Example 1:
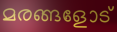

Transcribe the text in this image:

മരങ്ങളോട്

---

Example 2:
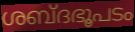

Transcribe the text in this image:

ശബ്ദഭൂപടം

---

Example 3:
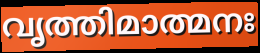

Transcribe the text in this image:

വൃത്തിമാത്മനഃ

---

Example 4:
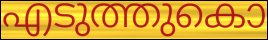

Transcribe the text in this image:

എടുത്തുകൊ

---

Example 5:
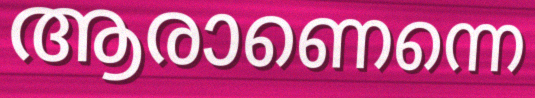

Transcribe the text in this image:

ആരാണെന്നെ